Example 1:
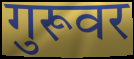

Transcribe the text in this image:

गुरूवर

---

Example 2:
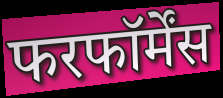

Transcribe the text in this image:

फरफॉर्मेंस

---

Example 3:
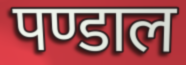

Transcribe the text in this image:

पण्डाल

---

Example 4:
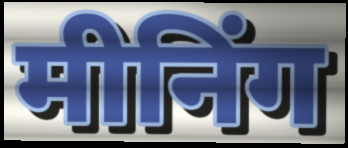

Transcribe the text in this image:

मीनिंग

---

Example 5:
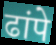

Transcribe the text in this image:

ढांपे